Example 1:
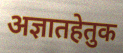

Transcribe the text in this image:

अज्ञातहेतुक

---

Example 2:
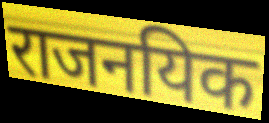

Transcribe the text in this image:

राजनयिक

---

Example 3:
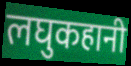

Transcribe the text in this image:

लघुकहानी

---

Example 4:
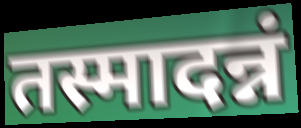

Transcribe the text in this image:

तस्मादन्नं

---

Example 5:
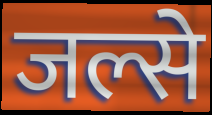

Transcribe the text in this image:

जल्से